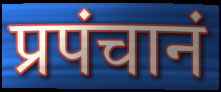
प्रपंचानं